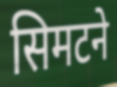
सिमटने